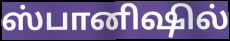
ஸ்பானிஷில்